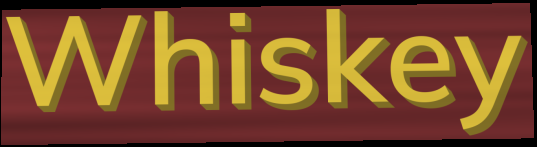
Whiskey